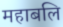
महाबलि